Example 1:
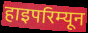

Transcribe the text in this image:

हाइपरिम्यून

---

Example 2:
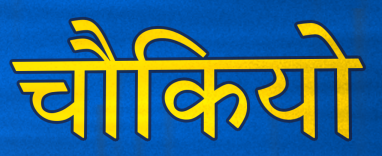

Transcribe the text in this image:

चौकियो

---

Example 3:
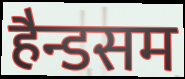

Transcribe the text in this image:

हैन्डसम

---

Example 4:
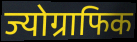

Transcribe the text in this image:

ज्योग्राफिक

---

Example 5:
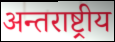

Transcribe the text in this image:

अन्तराष्ट्रीय